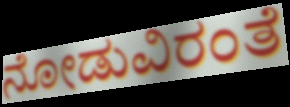
ನೋಡುವಿರಂತೆ